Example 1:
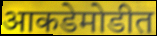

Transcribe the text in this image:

आकडेमोडीत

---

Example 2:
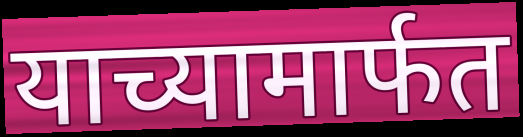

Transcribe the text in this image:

याच्यामार्फत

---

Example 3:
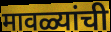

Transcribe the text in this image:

मावळ्यांची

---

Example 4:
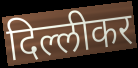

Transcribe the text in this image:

दिल्लीकर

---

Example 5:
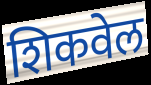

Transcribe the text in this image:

शिकवेल